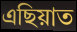
এছিয়াত